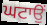
ਘਟਾਉਂ